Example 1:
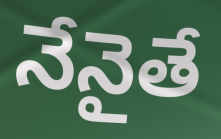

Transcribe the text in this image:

నేనైతే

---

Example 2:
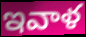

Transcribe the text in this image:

ఇవాళ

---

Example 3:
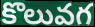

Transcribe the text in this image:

కొలువగ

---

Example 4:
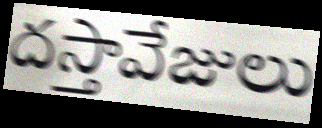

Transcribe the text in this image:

దస్తావేజులు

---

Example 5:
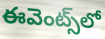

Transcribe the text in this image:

ఈవెంట్స్‌లో